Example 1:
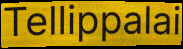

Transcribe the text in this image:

Tellippalai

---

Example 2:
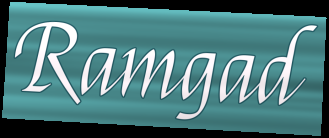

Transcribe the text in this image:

Ramgad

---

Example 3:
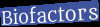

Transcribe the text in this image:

Biofactors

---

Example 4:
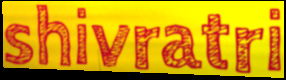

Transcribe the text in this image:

shivratri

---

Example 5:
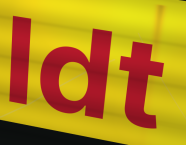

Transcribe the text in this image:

ldt